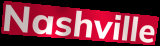
Nashville